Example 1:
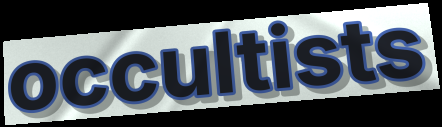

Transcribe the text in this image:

occultists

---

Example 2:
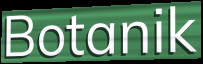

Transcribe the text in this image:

Botanik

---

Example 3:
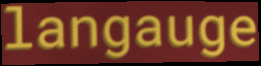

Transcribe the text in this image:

langauge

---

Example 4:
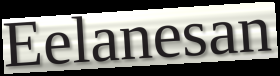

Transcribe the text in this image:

Eelanesan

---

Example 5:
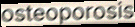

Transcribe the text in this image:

osteoporosis